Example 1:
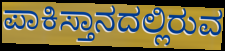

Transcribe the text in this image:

ಪಾಕಿಸ್ತಾನದಲ್ಲಿರುವ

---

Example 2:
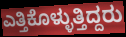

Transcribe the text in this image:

ಎತ್ತಿಕೊಳ್ಳುತ್ತಿದ್ದರು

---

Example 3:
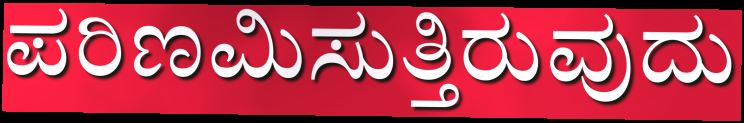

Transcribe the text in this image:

ಪರಿಣಮಿಸುತ್ತಿರುವುದು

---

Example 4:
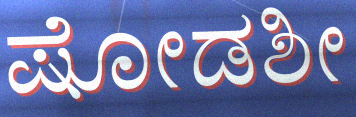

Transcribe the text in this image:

ಷೋಡಶೀ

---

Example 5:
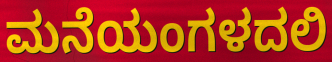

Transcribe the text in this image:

ಮನೆಯಂಗಳದಲಿ